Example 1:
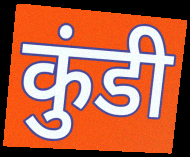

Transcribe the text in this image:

कुंडी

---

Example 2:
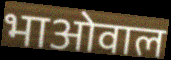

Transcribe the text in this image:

भाओवाल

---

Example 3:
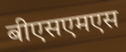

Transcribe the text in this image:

बीएसएमएस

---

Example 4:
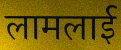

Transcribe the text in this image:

लामलाई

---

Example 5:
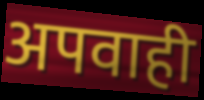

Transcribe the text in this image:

अपवाही